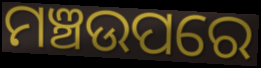
ମଞ୍ଚଉପରେ